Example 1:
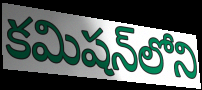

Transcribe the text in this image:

కమిషన్‌లోని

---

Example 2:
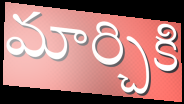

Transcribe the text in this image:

మార్చికి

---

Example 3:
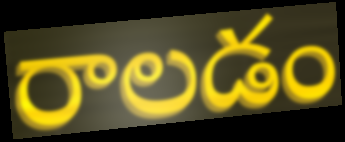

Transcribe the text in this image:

రాలడం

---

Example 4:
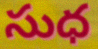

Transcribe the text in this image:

సుధ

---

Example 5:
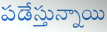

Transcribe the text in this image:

పడేస్తున్నాయి